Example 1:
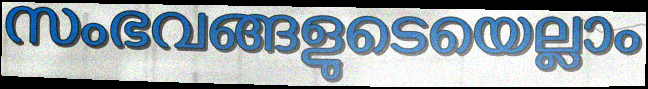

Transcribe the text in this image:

സംഭവങ്ങളുടെയെല്ലാം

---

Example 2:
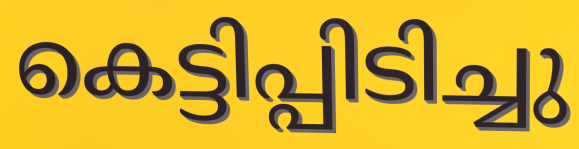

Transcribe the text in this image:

കെട്ടിപ്പിടിച്ചു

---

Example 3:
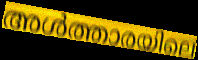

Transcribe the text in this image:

അൾത്താരയിലെ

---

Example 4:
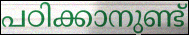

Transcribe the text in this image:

പഠിക്കാനുണ്ട്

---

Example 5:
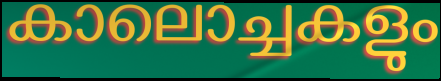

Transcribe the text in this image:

കാലൊച്ചകളും